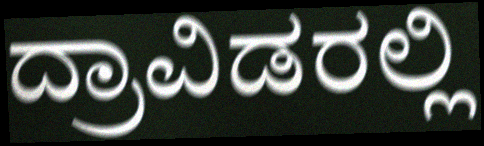
ದ್ರಾವಿಡರಲ್ಲಿ